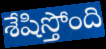
శేషిస్తోంది